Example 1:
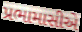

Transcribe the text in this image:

પ્રભામાસીએ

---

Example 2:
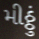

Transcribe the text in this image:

મીઠ્ઠું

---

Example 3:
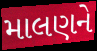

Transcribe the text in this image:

માલણને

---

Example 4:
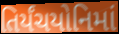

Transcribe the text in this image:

તિર્યંચયોનિમાં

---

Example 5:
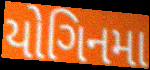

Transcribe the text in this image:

યોગિનમા